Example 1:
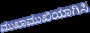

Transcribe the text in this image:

ಮುಖಾಮುಖಿಯಾಗಿಸಿ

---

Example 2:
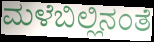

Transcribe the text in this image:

ಮಳೆಬಿಲ್ಲಿನಂತೆ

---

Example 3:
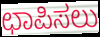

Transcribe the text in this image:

ಛಾಪಿಸಲು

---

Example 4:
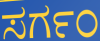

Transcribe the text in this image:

ಸರ್ಗಂ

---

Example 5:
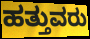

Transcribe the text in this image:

ಹತ್ತುವರು